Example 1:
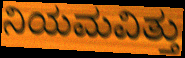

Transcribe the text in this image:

ನಿಯಮವಿತ್ತು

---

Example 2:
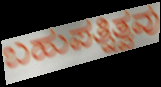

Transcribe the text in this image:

ಬಹುಪತ್ನಿತ್ವವು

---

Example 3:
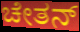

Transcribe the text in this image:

ಚೇತನ್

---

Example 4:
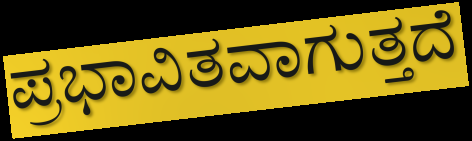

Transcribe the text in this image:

ಪ್ರಭಾವಿತವಾಗುತ್ತದೆ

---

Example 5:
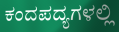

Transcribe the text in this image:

ಕಂದಪದ್ಯಗಳಲ್ಲಿ